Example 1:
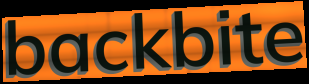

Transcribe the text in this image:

backbite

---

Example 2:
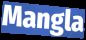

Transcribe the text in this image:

Mangla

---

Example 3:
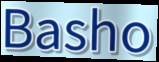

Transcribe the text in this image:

Basho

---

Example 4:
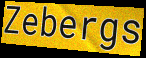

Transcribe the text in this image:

Zebergs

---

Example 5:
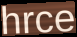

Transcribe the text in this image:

hrce